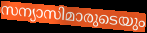
സന്യാസിമാരുടെയും